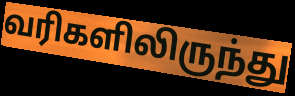
வரிகளிலிருந்து